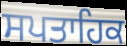
ਸਪਤਾਹਿਕ